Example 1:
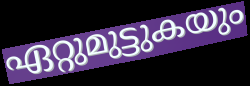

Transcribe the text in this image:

ഏറ്റുമുട്ടുകയും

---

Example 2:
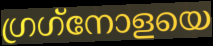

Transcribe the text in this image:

ഗ്രഗ്‌നോളയെ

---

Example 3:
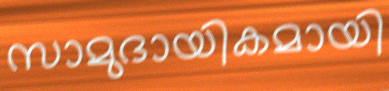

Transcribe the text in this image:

സാമുദായികമായി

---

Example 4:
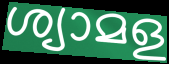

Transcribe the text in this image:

ശ്യാമള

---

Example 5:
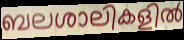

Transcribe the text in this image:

ബലശാലികളിൽ